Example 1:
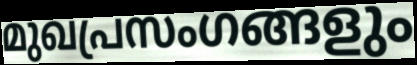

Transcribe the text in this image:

മുഖപ്രസംഗങ്ങളും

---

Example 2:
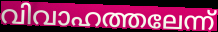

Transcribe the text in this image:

വിവാഹത്തലേന്ന്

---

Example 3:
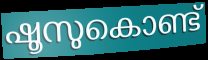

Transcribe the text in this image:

ഷൂസുകൊണ്ട്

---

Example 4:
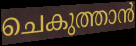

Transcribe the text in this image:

ചെകുത്താൻ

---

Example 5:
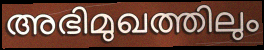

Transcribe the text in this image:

അഭിമുഖത്തിലും